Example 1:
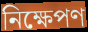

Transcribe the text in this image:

নিক্ষেপণ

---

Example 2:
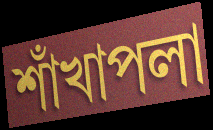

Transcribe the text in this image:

শাঁখাপলা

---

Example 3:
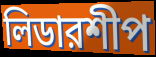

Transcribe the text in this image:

লিডারশীপ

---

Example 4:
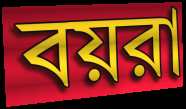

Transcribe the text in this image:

বয়রা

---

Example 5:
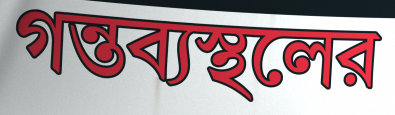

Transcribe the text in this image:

গন্তব্যস্থলের